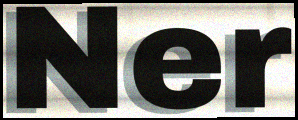
Ner